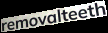
removalteeth